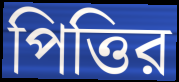
পিত্তির